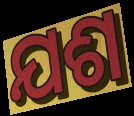
ଯଶ